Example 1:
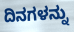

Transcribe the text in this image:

ದಿನಗಳನ್ನು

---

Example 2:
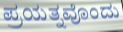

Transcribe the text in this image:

ಪ್ರಯತ್ನವೊಂದು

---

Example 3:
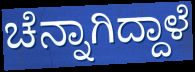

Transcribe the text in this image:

ಚೆನ್ನಾಗಿದ್ದಾಳೆ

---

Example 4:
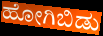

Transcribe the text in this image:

ಹೋಗಿಬಿಡು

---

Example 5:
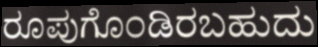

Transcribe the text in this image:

ರೂಪುಗೊಂಡಿರಬಹುದು